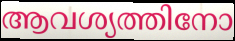
ആവശ്യത്തിനോ